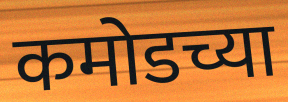
कमोडच्या